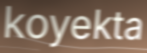
koyekta